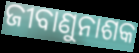
ଜୀବାଣୁନାଶକ